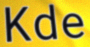
Kde